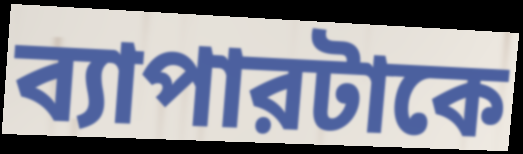
ব্যাপারটাকে